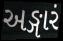
અઙ્ગારં